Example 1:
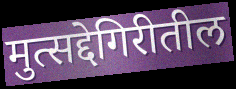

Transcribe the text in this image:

मुत्सद्देगिरीतील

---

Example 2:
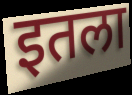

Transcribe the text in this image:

इतला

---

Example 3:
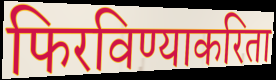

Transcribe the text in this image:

फिरविण्याकरिता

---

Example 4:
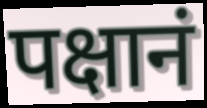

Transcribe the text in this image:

पक्षानं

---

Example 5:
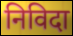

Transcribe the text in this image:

निविदा